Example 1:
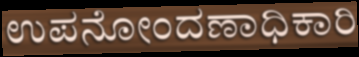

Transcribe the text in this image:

ಉಪನೋಂದಣಾಧಿಕಾರಿ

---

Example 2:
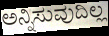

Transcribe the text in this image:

ಅನ್ನಿಸುವುದಿಲ್ಲ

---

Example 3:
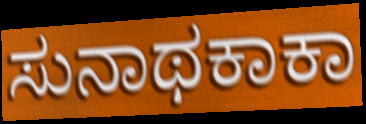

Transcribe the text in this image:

ಸುನಾಥಕಾಕಾ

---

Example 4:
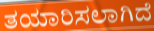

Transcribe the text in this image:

ತಯಾರಿಸಲಾಗಿದೆ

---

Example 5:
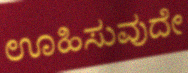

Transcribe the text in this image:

ಊಹಿಸುವುದೇ